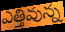
ఎత్తివున్న